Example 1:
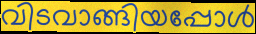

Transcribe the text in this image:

വിടവാങ്ങിയപ്പോൾ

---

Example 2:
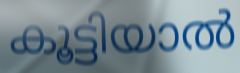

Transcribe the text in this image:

കൂട്ടിയാൽ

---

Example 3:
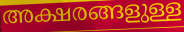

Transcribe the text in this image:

അക്ഷരങ്ങളുള്ള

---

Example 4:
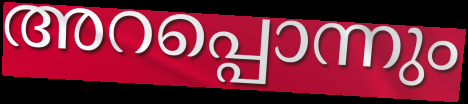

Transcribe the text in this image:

അറപ്പൊന്നും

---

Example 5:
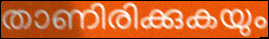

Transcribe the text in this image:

താണിരിക്കുകയും